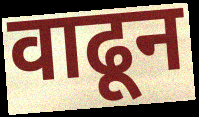
वाढून